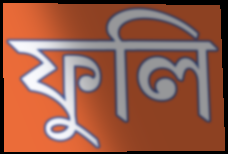
ফুলি